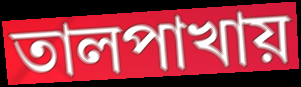
তালপাখায়